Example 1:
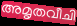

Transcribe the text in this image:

അമൃതവീചി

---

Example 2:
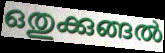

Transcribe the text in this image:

ഒതുക്കുങ്ങൽ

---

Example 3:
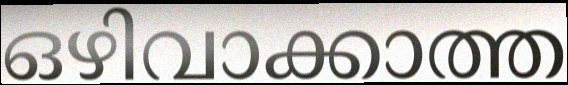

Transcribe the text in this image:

ഒഴിവാക്കാത്ത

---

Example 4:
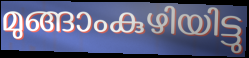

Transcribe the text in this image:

മുങ്ങാംകുഴിയിട്ടു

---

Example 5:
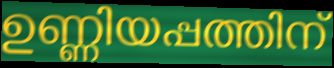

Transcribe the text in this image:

ഉണ്ണിയപ്പത്തിന്